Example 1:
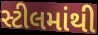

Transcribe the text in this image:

સ્ટીલમાંથી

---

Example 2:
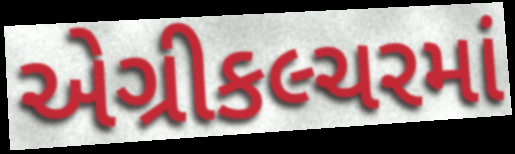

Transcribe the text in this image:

એગ્રીકલ્ચરમાં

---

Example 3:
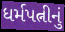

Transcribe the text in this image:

ધર્મપત્નીનું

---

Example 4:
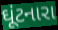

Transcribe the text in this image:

ઘૂંટનારા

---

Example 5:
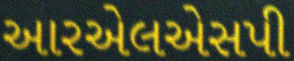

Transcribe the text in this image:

આરએલએસપી